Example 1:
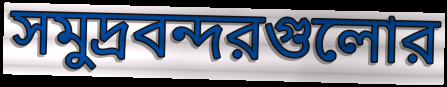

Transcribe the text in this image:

সমুদ্রবন্দরগুলোর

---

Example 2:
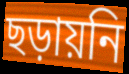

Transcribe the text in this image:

ছড়ায়নি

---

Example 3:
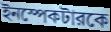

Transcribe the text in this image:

ইনস্পেকটারকে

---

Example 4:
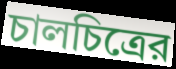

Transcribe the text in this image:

চালচিত্রের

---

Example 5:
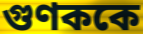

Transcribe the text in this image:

গুণককে